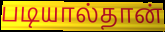
படியால்தான்